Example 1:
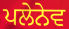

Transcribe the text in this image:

ਪਲੇਨੇਵ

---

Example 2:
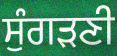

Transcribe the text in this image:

ਸੁੰਗੜਣੀ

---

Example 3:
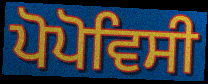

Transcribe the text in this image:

ਪੋਪੋਵਿਸੀ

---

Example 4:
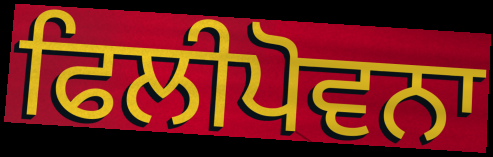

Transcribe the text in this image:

ਫਿਲੀਪੋਵਨਾ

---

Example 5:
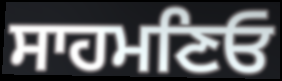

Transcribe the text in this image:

ਸਾਹਮਣਿਓ